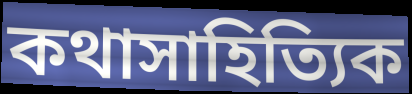
কথাসাহিত্যিক